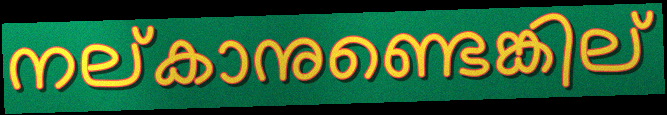
നല്കാനുണ്ടെങ്കില്